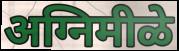
अग्निमीळे